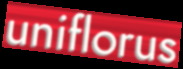
uniflorus